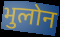
भुलोन